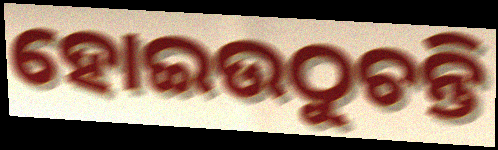
ହୋଇଉଠୁଚନ୍ତି